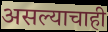
असल्याचाही